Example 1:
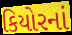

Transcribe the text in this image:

કિયોરનાં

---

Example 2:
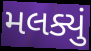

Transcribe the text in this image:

મલક્યું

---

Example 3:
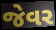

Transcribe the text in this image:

જેવર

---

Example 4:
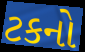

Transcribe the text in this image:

ટકનો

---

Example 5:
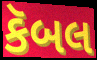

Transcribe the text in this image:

કૅબલ